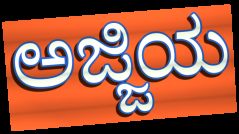
ಅಜ್ಜಿಯ